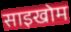
साइखोम